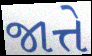
જાત્તે